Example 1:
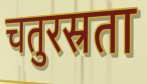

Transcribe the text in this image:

चतुरस्रता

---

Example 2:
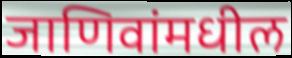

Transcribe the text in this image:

जाणिवांमधील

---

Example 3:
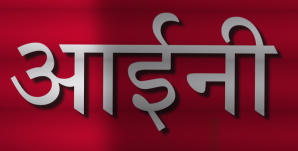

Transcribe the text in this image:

आईनी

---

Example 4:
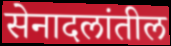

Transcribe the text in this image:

सेनादलांतील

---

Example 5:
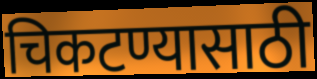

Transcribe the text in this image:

चिकटण्यासाठी